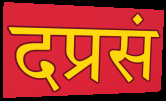
दप्रसं